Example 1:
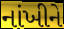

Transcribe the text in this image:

નાંખીને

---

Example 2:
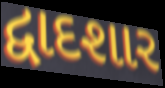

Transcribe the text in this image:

દ્વાદશાર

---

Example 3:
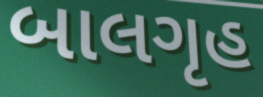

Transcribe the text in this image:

બાલગૃહ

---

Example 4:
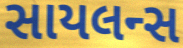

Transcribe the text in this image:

સાયલન્સ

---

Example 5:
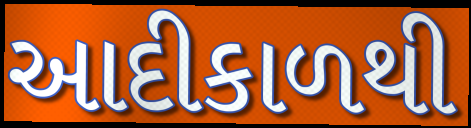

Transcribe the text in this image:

આદીકાળથી